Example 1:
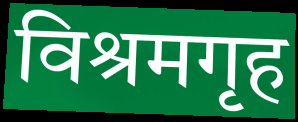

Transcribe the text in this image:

विश्रमगृह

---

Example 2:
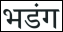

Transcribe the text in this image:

भडंग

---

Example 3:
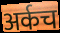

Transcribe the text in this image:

अर्कच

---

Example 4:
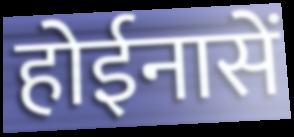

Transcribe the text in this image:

होईनासें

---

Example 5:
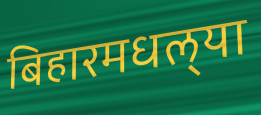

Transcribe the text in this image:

बिहारमधल्या